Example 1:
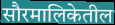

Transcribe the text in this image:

सौरमालिकेतील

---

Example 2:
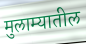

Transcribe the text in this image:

मुलाम्यातील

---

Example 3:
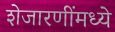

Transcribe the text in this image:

शेजारणींमध्ये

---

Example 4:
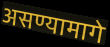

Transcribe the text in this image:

असण्यामागे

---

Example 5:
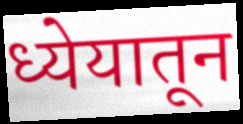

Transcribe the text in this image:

ध्येयातून